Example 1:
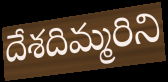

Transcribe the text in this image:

దేశదిమ్మరిని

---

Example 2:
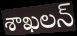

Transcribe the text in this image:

శాఖలన్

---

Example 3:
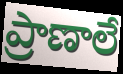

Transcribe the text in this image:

ప్రాణాలే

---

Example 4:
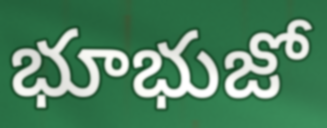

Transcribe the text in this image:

భూభుజో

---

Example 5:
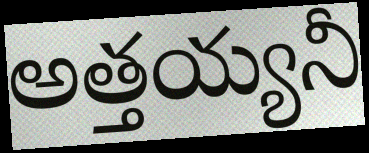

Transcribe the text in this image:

అత్తయ్యనీ